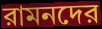
রামনদের